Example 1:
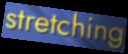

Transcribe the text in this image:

stretching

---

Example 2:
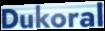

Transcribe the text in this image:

Dukoral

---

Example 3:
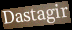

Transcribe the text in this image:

Dastagir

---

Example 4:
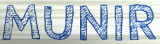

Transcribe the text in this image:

MUNIR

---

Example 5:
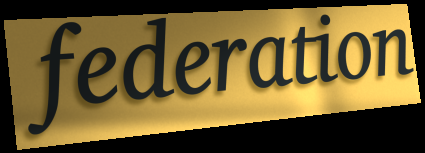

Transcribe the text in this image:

federation